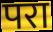
परा